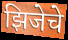
झिजेचे